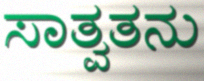
ಸಾತ್ವತನು